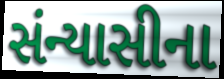
સંન્યાસીના